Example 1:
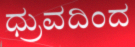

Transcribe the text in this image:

ಧ್ರುವದಿಂದ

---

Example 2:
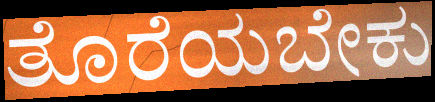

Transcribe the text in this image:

ತೊರೆಯಬೇಕು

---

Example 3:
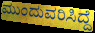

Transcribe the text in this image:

ಮುಂದುವರಿಸಿದ್ದೆ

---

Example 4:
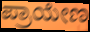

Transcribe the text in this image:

ಪ್ರಾಯೇಣ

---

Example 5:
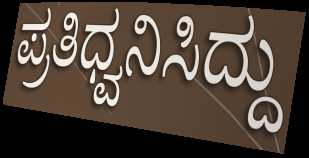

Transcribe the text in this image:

ಪ್ರತಿಧ್ವನಿಸಿದ್ದು